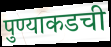
पुण्याकडची